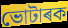
ভোটাৰক